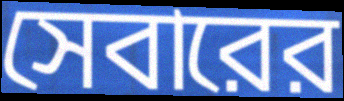
সেবারের